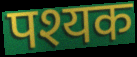
पश्यक